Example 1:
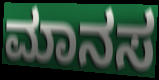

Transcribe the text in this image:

ಮಾನಸ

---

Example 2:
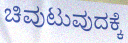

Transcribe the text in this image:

ಚಿವುಟುವುದಕ್ಕೆ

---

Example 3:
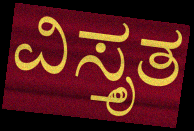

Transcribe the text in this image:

ವಿಸ್ತೃತ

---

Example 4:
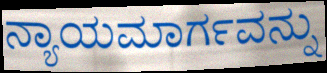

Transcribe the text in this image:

ನ್ಯಾಯಮಾರ್ಗವನ್ನು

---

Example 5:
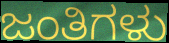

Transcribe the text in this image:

ಜಂತಿಗಳು